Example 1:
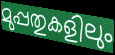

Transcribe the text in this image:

മുപ്പതുകളിലും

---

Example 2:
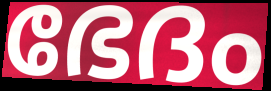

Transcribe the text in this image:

ഭേദം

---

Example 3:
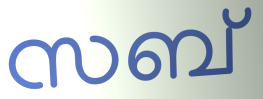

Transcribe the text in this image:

സബ്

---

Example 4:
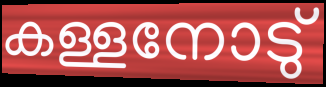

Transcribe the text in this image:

കള്ളനോടു്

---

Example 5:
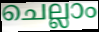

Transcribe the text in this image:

ചെല്ലാം